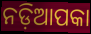
ନଡ଼ିଆପକା